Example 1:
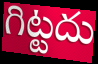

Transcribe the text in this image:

గిట్టదు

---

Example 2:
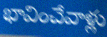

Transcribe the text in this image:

భావించేవాళ్లు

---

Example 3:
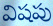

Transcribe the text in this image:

విషపు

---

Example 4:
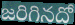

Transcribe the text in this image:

జరిగినదో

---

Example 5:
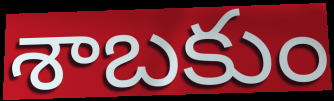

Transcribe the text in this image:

శాబకుం